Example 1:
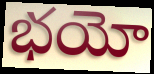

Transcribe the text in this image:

భయో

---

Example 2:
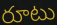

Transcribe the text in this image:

రూటు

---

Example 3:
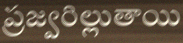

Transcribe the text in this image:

ప్రజ్వరిల్లుతాయి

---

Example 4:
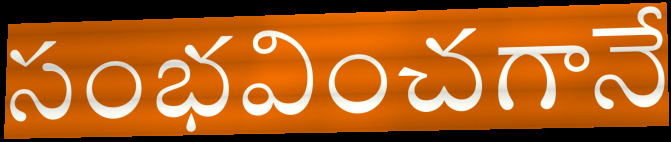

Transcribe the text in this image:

సంభవించగానే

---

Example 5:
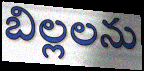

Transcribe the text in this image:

బిల్లలను